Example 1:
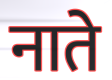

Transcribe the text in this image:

नाते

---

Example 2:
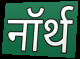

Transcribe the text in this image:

नॉर्थ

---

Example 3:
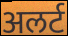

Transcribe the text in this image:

अलर्ट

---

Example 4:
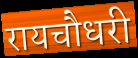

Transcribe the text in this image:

रायचौधरी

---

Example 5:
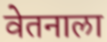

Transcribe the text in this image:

वेतनाला